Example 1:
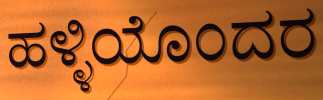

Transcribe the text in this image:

ಹಳ್ಳಿಯೊಂದರ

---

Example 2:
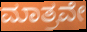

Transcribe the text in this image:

ಮಾತ್ರವೇ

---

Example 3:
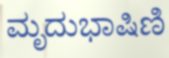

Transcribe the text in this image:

ಮೃದುಭಾಷಿಣಿ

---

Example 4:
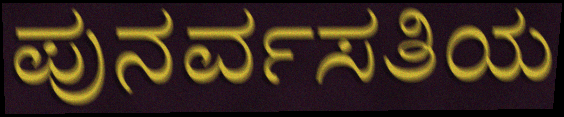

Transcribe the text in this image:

ಪುನರ್ವಸತಿಯ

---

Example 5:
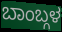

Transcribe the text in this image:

ಬಾಂಬ್ಗಳ